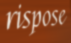
rispose